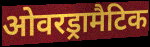
ओवरड्रामैटिक